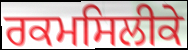
ਰਕਮਸਿਲੀਕੇ